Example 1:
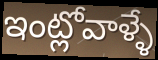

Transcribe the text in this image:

ఇంట్లోవాళ్ళే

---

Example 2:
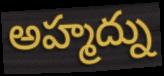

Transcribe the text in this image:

అహ్మద్ను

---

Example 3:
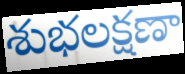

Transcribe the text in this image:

శుభలక్షణా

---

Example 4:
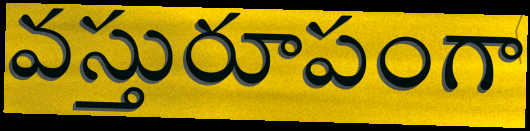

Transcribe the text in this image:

వస్తురూపంగా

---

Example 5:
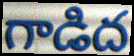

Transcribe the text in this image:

గాడిద